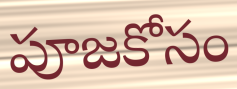
పూజకోసం